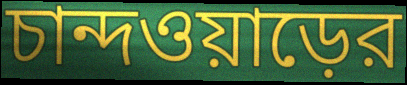
চান্দওয়াড়ের